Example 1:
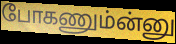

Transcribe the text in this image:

போகணும்ன்னு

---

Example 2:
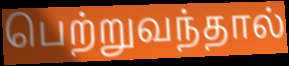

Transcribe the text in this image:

பெற்றுவந்தால்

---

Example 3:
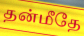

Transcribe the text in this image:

தன்மீதே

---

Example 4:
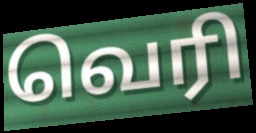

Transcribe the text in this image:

வெரி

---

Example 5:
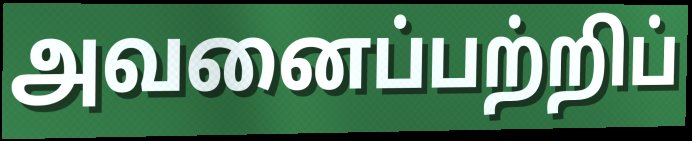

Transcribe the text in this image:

அவனைப்பற்றிப்